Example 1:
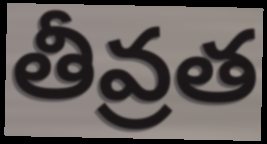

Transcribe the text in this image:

తీవ్రత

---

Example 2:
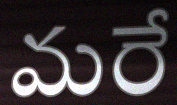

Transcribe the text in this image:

మరే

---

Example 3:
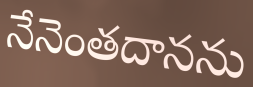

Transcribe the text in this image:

నేనెంతదానను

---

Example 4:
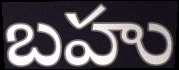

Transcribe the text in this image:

బహు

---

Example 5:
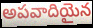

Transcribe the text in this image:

అపవాదియైన